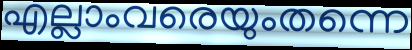
എല്ലാംവരെയുംതന്നെ